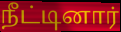
நீட்டினார்